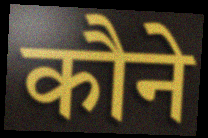
कौने